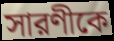
সারণীকে